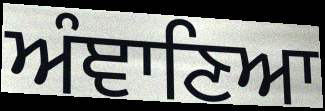
ਅੰਞਾਣਿਆ